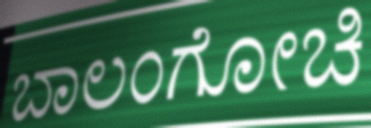
ಬಾಲಂಗೋಚಿ